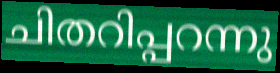
ചിതറിപ്പറന്നു